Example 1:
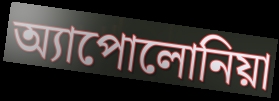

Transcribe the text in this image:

অ্যাপোলোনিয়া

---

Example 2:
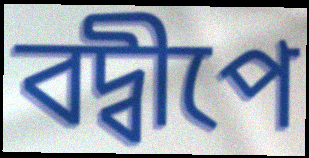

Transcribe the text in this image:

বদ্বীপে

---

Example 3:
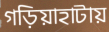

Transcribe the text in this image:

গড়িয়াহাটায়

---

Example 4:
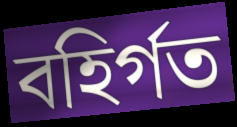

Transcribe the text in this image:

বহির্গত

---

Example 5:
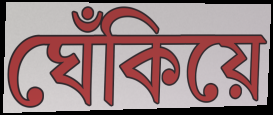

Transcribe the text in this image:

ঘেঁকিয়ে